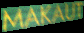
MAKAUT